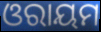
ଓରାୟମ